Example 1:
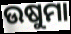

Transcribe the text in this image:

ଉଷୁମା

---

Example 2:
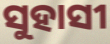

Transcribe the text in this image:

ସୁହାସୀ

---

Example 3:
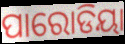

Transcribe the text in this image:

ପାରୋଡିୟା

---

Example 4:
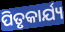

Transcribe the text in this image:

ପିତୃକାର୍ଯ୍ୟ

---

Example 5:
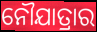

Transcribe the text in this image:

ନୌଯାତ୍ରାର